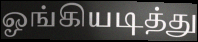
ஓங்கியடித்து